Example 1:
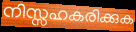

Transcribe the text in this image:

നിസ്സഹകരിക്കുക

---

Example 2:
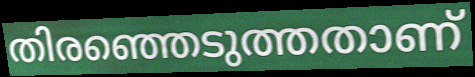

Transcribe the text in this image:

തിരഞ്ഞെടുത്തതാണ്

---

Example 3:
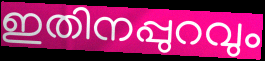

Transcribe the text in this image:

ഇതിനപ്പുറവും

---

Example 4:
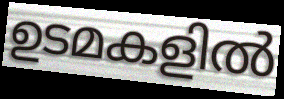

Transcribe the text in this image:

ഉടമകളിൽ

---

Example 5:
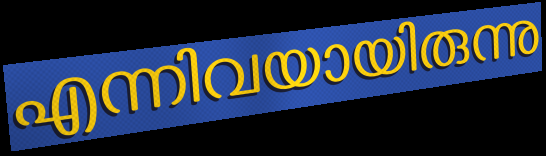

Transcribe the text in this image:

എന്നിവയായിരുന്നു